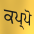
ਕਪ੍ਪੋ